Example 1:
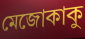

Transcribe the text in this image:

মেজোকাকু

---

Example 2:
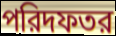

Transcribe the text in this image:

পরিদফতর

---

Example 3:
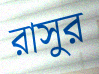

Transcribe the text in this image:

রাসুর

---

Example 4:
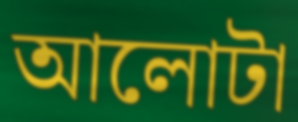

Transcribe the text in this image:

আলোটা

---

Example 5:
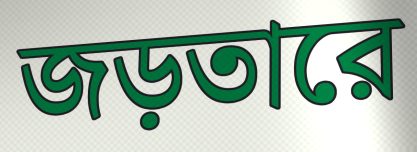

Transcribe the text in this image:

জড়তারে